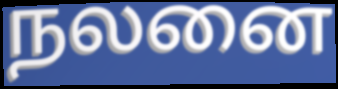
நலனை